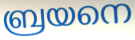
ബ്രയനെ